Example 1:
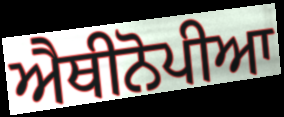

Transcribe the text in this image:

ਐਥੀਨੋਪੀਆ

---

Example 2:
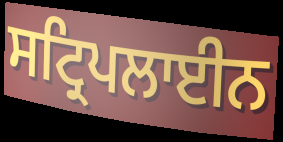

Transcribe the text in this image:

ਸਟ੍ਰਿਪਲਾਈਨ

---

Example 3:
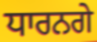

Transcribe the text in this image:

ਧਾਰਨਗੇ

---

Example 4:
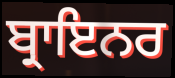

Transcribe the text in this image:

ਬ੍ਰਾਇਨਰ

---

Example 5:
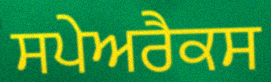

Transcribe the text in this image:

ਸਪੇਅਰੈਕਸ